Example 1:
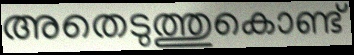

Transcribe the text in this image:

അതെടുത്തുകൊണ്ട്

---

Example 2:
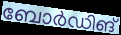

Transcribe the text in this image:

ബോർഡിങ്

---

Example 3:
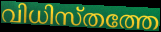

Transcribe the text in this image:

വിധിസ്തത്തേ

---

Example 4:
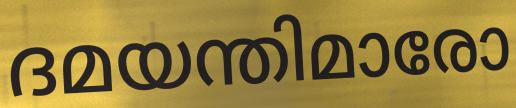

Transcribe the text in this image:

ദമയന്തിമാരോ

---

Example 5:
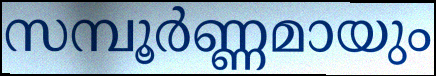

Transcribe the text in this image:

സമ്പൂർണ്ണമായും